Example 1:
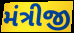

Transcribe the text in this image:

મંત્રીજી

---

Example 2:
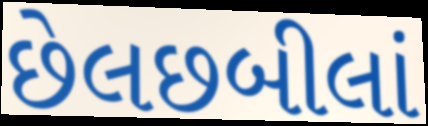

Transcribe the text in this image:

છેલછબીલાં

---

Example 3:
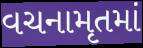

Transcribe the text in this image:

વચનામૃતમાં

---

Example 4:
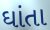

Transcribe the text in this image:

ઘાંતા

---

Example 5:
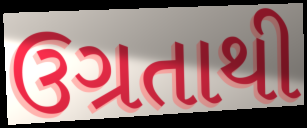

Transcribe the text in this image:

ઉગ્રતાથી